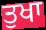
ਤੁਖਾ